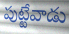
పుట్టేవాడు